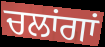
ਚਲਾਂਗਾਂ